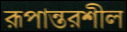
রূপান্তরশীল